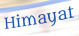
Himayat